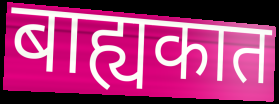
बाह्यकात